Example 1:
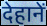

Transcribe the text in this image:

देहानें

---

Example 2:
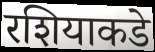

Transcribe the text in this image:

रशियाकडे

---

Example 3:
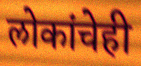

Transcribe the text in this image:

लोकांचेही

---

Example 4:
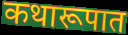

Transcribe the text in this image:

कथारूपात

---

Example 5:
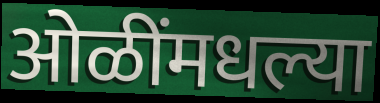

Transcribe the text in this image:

ओळींमधल्या